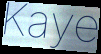
Kaye